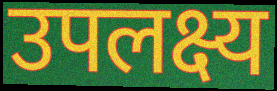
उपलक्ष्य